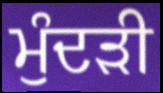
ਮੁੰਦੜੀ